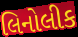
લિનોલીક